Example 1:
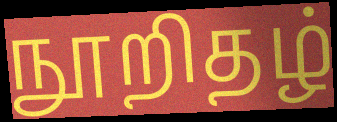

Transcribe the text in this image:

நூறிதழ்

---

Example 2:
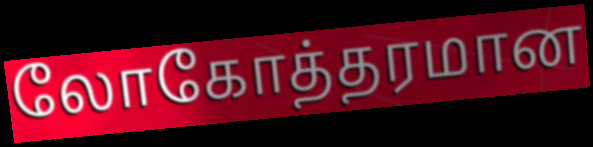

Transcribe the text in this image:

லோகோத்தரமான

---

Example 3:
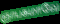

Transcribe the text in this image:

ஞாபகமாவே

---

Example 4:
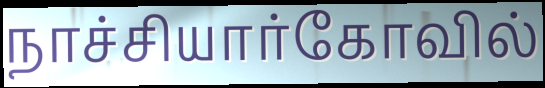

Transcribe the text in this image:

நாச்சியார்கோவில்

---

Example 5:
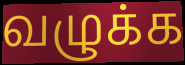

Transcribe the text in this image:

வழுக்க